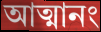
আত্মানং